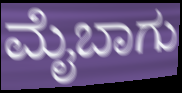
ಮೈಬಾಗು